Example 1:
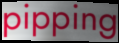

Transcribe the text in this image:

pipping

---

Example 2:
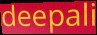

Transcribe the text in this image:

deepali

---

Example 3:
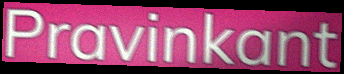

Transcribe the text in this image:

Pravinkant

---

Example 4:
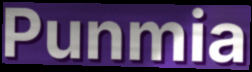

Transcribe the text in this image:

Punmia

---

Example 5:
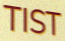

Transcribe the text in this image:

TIST